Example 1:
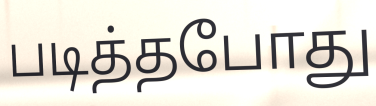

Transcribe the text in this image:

படித்தபோது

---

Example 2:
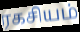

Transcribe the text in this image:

ரகசியம்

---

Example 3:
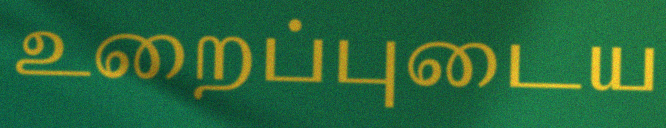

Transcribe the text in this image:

உறைப்புடைய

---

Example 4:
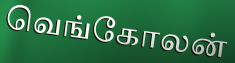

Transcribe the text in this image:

வெங்கோலன்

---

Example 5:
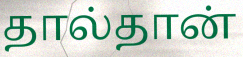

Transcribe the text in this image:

தால்தான்